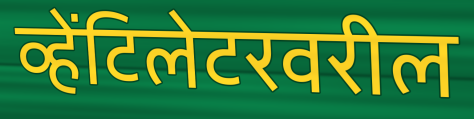
व्हेंटिलेटरवरील